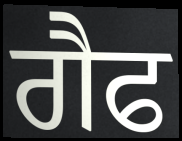
ਗੈਫ